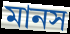
মানস